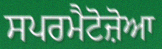
ਸਪਰਮੈਟੋਜ਼ੋਆ